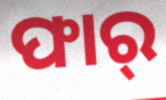
ଫାର୍